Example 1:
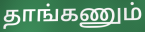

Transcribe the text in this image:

தாங்கணும்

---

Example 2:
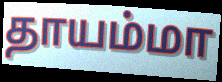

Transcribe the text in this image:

தாயம்மா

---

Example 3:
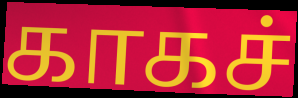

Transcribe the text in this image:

காகச்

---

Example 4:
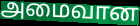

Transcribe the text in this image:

அமைவான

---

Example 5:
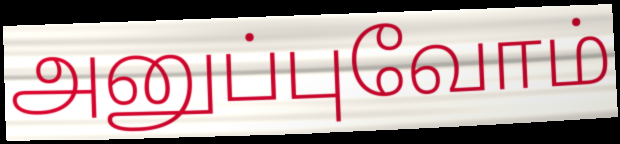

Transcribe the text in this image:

அனுப்புவோம்